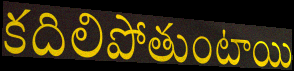
కదిలిపోతుంటాయి